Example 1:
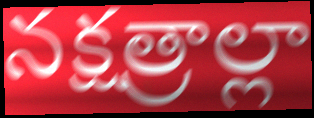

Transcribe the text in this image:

నక్షత్రాల్లా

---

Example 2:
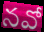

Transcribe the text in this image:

నవో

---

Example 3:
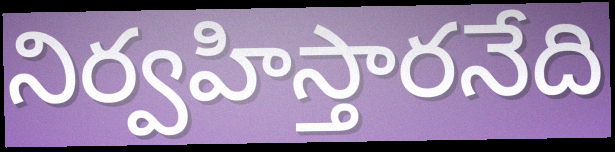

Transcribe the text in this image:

నిర్వహిస్తారనేది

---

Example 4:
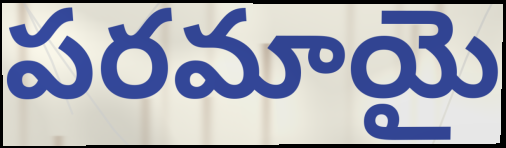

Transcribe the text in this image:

పరమాయై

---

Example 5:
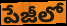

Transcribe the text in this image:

పేజీలో